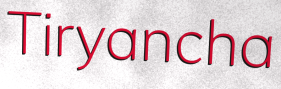
Tiryancha